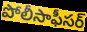
పోలీసాఫీసర్